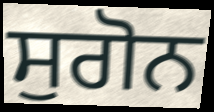
ਸੁਗੋਨ